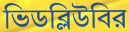
ভিডব্লিউবির